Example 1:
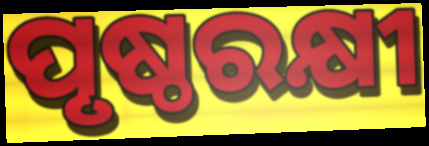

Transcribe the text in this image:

ପୃଷ୍ଠରକ୍ଷୀ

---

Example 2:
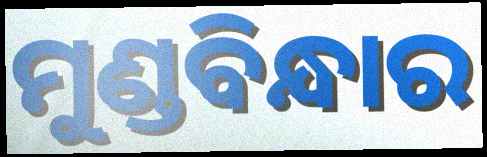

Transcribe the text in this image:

ମୁଣ୍ଡବିନ୍ଧାର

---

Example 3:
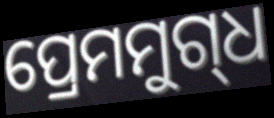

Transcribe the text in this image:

ପ୍ରେମମୁଗ୍‌ଧ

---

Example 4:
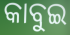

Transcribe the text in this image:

କାବୁଇ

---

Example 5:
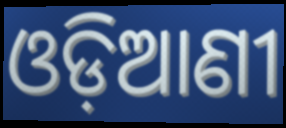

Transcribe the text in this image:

ଓଡ଼ିଆଣୀ